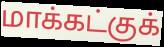
மாக்கட்குக்